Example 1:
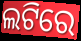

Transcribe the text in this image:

ଲଟିରେ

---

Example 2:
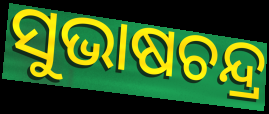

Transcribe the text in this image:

ସୁଭାଷଚନ୍ଦ୍ର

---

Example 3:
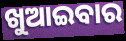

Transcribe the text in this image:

ଖୁଆଇବାର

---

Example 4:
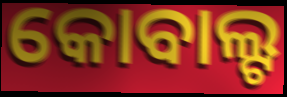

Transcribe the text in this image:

କୋବାଲ୍ଟ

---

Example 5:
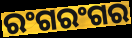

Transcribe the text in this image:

ରଂଗରଂଗର